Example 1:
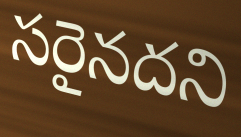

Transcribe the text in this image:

సరైనదని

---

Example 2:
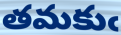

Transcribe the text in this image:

తమకుఁ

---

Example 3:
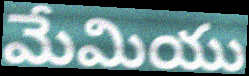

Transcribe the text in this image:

మేమియు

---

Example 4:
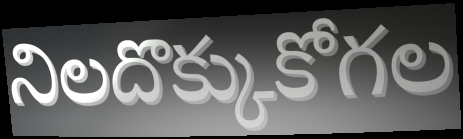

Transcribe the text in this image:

నిలదొక్కుకోగల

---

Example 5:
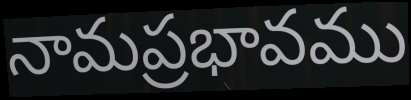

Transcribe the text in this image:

నామప్రభావము